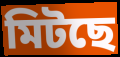
মিটছে